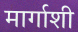
मार्गाशी